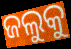
ଜଲୁକୁ